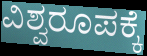
ವಿಶ್ವರೂಪಕ್ಕೆ